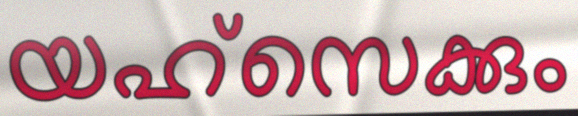
യഹ്സെക്കും